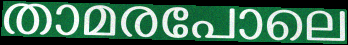
താമരപോലെ